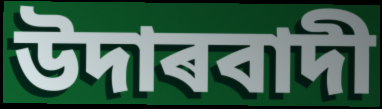
উদাৰবাদী